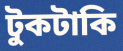
টুকটাকি